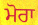
ਮੋਰਾ